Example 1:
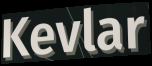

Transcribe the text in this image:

Kevlar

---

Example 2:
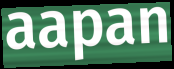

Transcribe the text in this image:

aapan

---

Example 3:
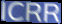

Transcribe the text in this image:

ICRR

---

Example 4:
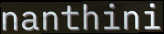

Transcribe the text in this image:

nanthini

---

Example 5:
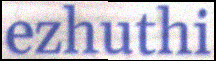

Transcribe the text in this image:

ezhuthi